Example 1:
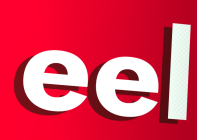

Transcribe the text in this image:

eel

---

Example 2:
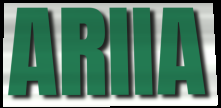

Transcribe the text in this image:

ARIIA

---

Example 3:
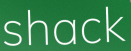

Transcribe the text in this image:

shack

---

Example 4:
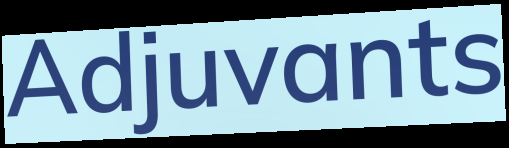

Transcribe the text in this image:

Adjuvants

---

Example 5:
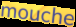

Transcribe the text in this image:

mouche